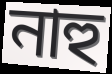
নাহু